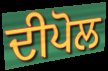
ਦੀਪੋਲ